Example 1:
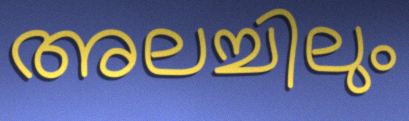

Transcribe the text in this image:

അലച്ചിലും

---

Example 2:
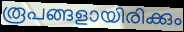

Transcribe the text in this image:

രൂപങ്ങളായിരിക്കും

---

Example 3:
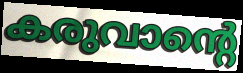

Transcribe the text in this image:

കരുവാന്റെ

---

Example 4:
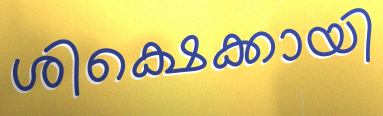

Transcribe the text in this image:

ശിക്ഷെക്കായി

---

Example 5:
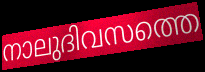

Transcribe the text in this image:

നാലുദിവസത്തെ